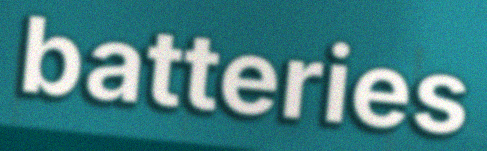
batteries